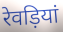
रेवड़ियां